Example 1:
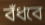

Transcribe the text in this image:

বঁধবে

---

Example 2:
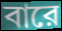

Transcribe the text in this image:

বারে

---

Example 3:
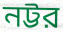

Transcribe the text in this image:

নট্টর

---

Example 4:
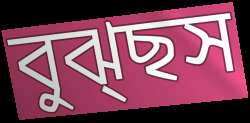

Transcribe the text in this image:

বুঝ্ছস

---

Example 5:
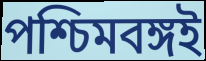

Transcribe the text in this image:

পশ্চিমবঙ্গই